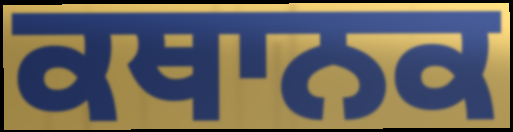
ਕਥਾਨਕ